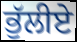
ਭੁੱਲੀਏ